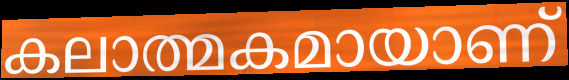
കലാത്മകമായാണ്